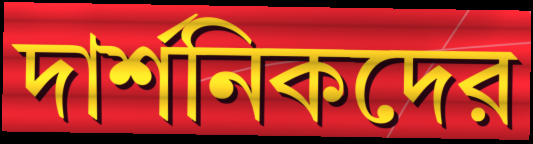
দার্শনিকদের